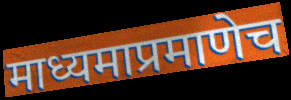
माध्यमाप्रमाणेच